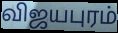
விஜயபுரம்